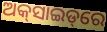
ଅକ୍‌ସାଇଡ୍‌ରେ